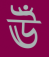
ঊঁ